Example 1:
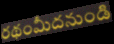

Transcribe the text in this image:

రథంమీదనుండి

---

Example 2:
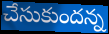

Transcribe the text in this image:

చేసుకుందన్న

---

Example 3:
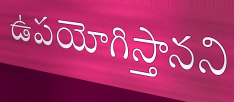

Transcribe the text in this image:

ఉపయోగిస్తానని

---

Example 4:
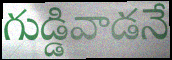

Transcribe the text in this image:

గుడ్డివాడనే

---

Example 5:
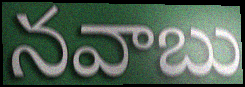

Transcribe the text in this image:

నవాబు